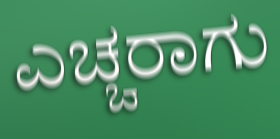
ಎಚ್ಚರಾಗು